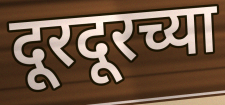
दूरदूरच्या